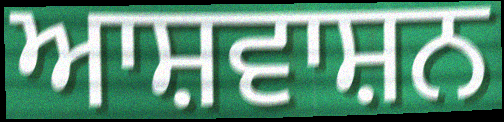
ਆਸ਼ਵਾਸ਼ਨ